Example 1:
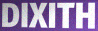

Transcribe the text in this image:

DIXITH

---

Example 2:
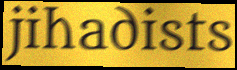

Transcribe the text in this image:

jihadists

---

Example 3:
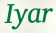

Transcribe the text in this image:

Iyar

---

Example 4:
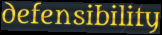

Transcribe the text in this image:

defensibility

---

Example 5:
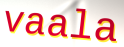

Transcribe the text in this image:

vaala